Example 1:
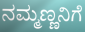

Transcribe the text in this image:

ನಮ್ಮಣ್ಣನಿಗೆ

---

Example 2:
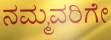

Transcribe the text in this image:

ನಮ್ಮವರಿಗೇ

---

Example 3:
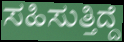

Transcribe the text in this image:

ಸಹಿಸುತ್ತಿದ್ದೆ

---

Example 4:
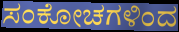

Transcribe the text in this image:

ಸಂಕೋಚಗಳಿಂದ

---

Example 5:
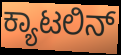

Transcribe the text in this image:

ಕ್ಯಾಟಲಿನ್